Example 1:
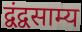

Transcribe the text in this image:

द्वंद्वसाम्य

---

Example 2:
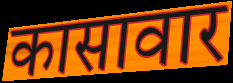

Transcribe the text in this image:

कासावार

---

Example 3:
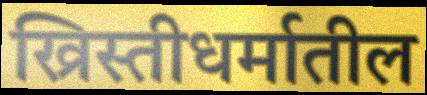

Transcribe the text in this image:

ख्रिस्तीधर्मातील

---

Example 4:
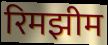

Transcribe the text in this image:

रिमझीम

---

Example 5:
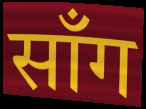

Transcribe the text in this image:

साँग